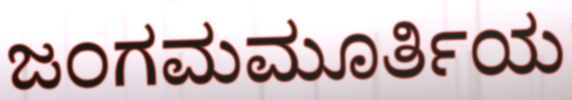
ಜಂಗಮಮೂರ್ತಿಯ